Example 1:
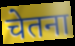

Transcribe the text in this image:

चेतना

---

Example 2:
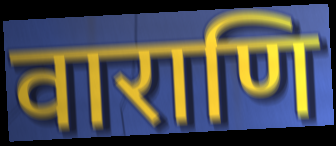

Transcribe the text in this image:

वाराणि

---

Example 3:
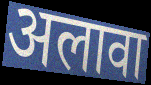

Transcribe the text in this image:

अलावा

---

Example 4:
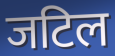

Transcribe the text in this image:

जटिल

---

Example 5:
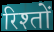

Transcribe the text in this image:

रिश्तों